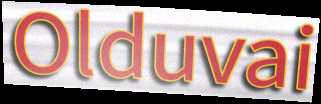
Olduvai